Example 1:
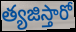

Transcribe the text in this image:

త్యజిస్తారో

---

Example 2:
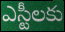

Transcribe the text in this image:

ఎస్టీలకు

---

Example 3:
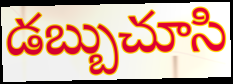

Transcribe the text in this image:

డబ్బుచూసి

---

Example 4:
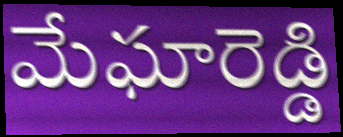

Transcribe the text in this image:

మేఘారెడ్డి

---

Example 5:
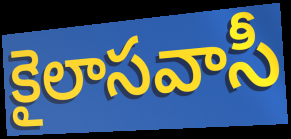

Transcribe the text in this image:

కైలాసవాసీ